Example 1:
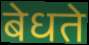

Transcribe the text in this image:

बेधते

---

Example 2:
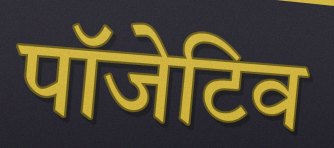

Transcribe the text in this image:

पॉजेटिव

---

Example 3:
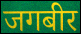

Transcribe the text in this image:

जगबीर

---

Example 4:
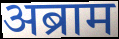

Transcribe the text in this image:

अब्राम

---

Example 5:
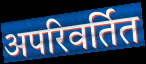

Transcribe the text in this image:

अपरिवर्तित